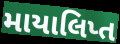
માયાલિપ્ત